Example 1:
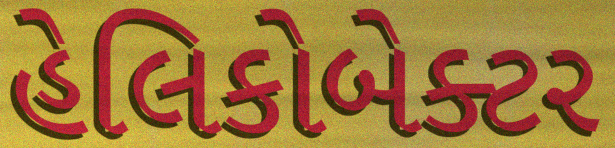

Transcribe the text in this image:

હેલિકોબેક્ટર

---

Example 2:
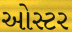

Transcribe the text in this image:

ઓસ્ટર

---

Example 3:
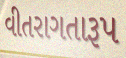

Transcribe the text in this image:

વીતરાગતારૂપ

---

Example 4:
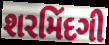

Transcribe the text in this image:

શરમિંદગી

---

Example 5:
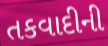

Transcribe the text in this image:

તકવાદીની